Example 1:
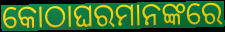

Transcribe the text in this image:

କୋଠାଘରମାନଙ୍କରେ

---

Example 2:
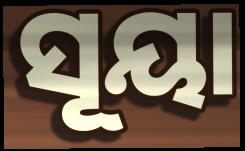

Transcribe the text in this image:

ସୂୟା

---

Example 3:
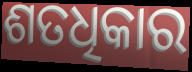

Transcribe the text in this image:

ଶତଧିକାର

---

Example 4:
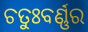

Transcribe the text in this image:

ଚତୁଃବର୍ଣ୍ଣର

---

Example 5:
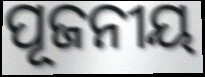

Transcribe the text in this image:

ପୂଜନୀୟ